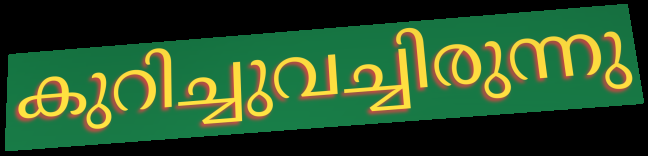
കുറിച്ചുവച്ചിരുന്നു